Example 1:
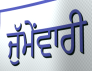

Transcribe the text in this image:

ਜੁੱਮੇਂਵਾਰੀ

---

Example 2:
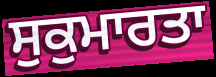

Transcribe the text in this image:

ਸੁਕੁਮਾਰਤਾ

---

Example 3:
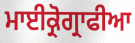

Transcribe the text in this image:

ਮਾਈਕ੍ਰੋਗ੍ਰਾਫੀਆ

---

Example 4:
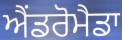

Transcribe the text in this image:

ਐਂਡਰੋਮੈਡਾ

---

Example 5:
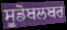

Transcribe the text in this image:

ਸੂਡੋਬਲਬਰ